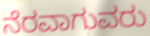
ನೆರವಾಗುವರು